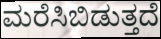
ಮರೆಸಿಬಿಡುತ್ತದೆ